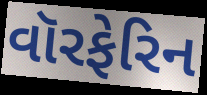
વૉરફેરિન